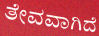
ತೇವವಾಗಿದೆ